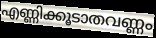
എണ്ണിക്കൂടാതവണ്ണം